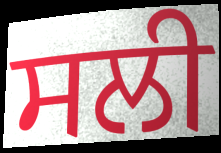
ਸਲੀ